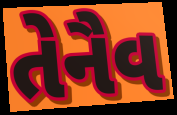
તેનૈવ